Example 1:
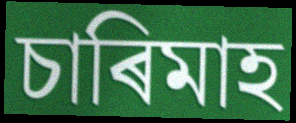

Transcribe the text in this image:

চাৰিমাহ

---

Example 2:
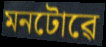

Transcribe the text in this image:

মনটোৱে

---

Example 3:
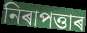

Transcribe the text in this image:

নিৰাপত্তাৰ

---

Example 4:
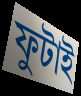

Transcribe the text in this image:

ফুটাই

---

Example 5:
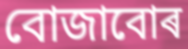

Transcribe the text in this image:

বোজাবোৰ